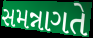
સમન્નાગતે